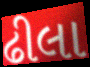
ઢીલા